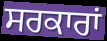
ਸਰਕਾਰਾਂ